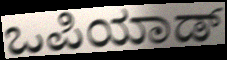
ಒಪಿಯಾಡ್